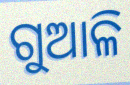
ଗୁଆଳି